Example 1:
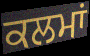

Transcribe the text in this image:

ਕਲਮਾਂ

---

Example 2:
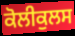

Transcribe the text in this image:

ਕੋਲੀਕੁਲਸ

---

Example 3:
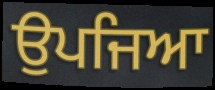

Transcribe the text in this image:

ਉਪਜਿਆ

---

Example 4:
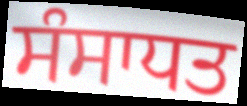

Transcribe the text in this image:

ਸੰਸਾਧਤ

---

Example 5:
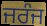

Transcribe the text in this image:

ਜਰੰਜ